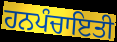
ਹਨਪੰਚਾਇਤੀ